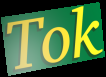
Tok